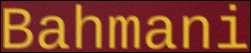
Bahmani